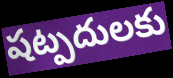
షట్పదులకు